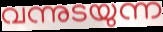
വന്നുടയുന്ന